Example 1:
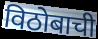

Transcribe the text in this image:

विठोबाची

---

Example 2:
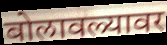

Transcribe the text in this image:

बोलावल्यावर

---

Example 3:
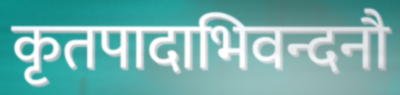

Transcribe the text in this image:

कृतपादाभिवन्दनौ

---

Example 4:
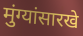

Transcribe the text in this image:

मुंग्यांसारखे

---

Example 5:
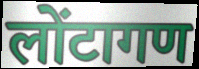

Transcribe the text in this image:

लोंटागण